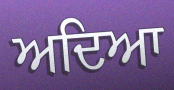
ਅਦਿਆ